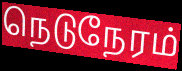
நெடுநேரம்